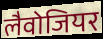
लैवोजियर